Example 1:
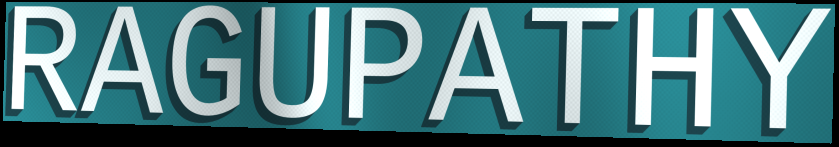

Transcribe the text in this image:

RAGUPATHY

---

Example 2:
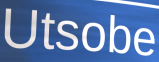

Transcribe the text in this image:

Utsobe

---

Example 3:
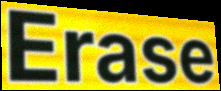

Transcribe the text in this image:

Erase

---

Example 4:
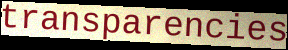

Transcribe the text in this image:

transparencies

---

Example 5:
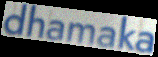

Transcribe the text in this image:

dhamaka